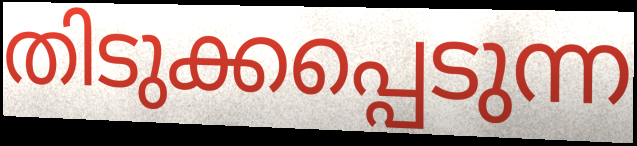
തിടുക്കപ്പെടുന്ന